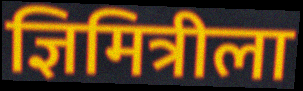
ज्ञिमित्रीला